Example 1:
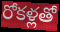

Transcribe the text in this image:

రోకళ్లతో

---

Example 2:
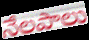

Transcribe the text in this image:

నేలపాలు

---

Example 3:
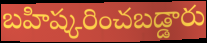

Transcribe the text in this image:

బహిష్కరించబడ్డారు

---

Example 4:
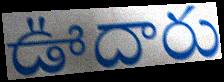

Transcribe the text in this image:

ఊదారు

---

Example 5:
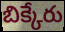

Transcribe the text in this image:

బిక్కేరు